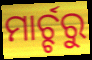
ମାର୍ଚ୍ଚରୁ